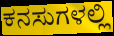
ಕನಸುಗಳಲ್ಲಿ